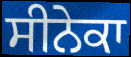
ਸੀਨੇਕਾ